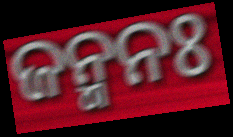
ଜନ୍ମନଃ